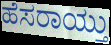
ಹೆಸರಾಯ್ತು